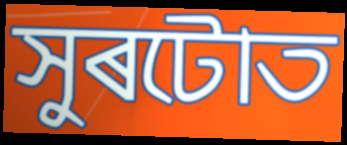
সুৰটোত